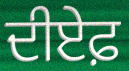
ਦੀਏਫ਼